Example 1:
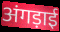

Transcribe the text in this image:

अंगड़ाई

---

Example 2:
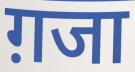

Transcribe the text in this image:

ग़जा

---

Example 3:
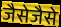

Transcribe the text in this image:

जैसेजैसे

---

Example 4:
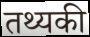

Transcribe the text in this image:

तथ्यकी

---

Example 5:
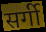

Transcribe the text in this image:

सर्गी